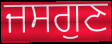
ਜਸਗੁਣ